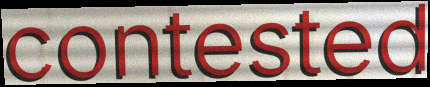
contested